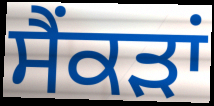
ਸੈਂਕੜਾਂ